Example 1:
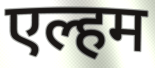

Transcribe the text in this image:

एल्हम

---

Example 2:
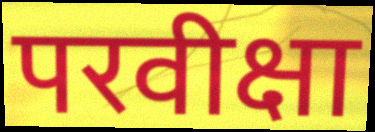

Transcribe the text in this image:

परवीक्षा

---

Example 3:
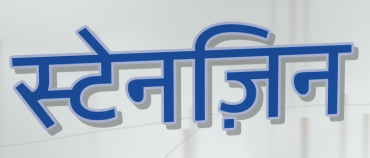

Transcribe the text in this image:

स्टेनज़िन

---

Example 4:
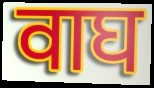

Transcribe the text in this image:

वाघ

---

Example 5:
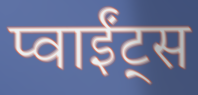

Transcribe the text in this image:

प्वाईंट्स